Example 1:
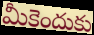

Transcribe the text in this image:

మీకెందుకు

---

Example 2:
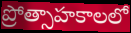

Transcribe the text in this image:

ప్రోత్సాహకాలలో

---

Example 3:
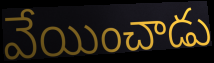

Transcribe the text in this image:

వేయించాడు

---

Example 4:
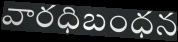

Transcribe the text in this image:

వారధిబంధన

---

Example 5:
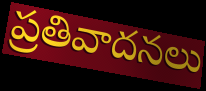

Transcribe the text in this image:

ప్రతివాదనలు